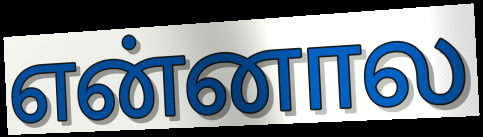
என்னால